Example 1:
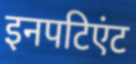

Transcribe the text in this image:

इनपटिएंट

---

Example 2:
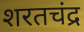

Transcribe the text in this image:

शरतचंद्र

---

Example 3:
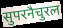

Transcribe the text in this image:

सुपरनैचुरल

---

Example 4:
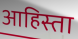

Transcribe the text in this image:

आहिस्ता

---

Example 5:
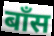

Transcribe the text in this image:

बॉंस